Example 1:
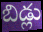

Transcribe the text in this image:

బిడ్లు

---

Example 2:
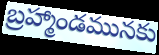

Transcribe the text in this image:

బ్రహ్మాండమునకు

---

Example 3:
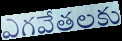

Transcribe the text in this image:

ఎగవేతలకు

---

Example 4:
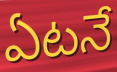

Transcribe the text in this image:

ఏటనే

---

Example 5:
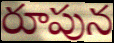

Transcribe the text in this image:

రూపున